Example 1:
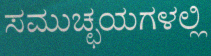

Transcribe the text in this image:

ಸಮುಚ್ಛಯಗಳಲ್ಲಿ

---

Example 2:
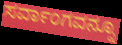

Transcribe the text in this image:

ಸರ್ವಾಂಗವನ್ನೂ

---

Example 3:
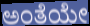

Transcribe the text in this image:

ಅಂತೆಯೇ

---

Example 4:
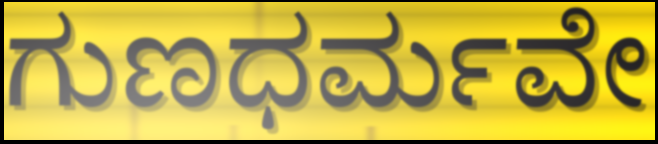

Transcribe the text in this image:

ಗುಣಧರ್ಮವೇ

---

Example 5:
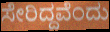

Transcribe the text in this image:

ಸೇರಿದ್ದವೆಂದು